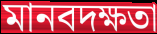
মানবদক্ষতা